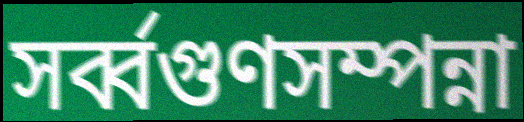
সর্ব্বগুণসম্পন্না